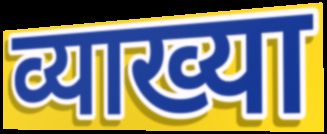
व्याख्या